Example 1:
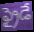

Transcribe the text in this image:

ఫ్రైడే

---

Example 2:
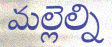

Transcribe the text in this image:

మల్లెల్ని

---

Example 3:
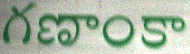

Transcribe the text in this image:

గణాంకా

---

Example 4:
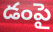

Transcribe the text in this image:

డంపై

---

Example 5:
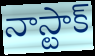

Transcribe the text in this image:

నాస్టాక్